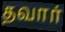
தவார்